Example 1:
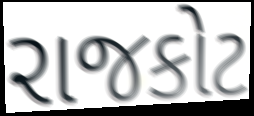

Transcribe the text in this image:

રાજકોટ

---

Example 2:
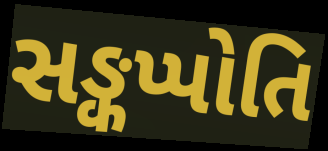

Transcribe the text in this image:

સઙ્કપ્પોતિ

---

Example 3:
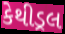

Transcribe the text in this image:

કેથીડ્રલ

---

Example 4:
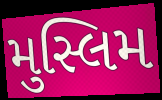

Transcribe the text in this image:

મુસ્લિમ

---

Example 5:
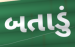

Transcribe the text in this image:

બતાડું